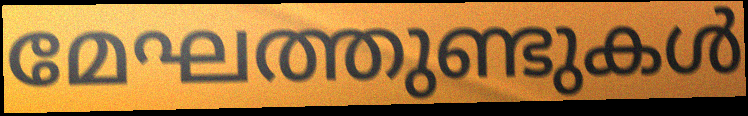
മേഘത്തുണ്ടുകൾ